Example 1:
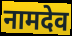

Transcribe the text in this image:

नामदेव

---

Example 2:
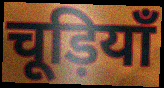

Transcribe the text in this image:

चूड़ियाँ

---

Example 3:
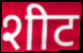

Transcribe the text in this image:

शीट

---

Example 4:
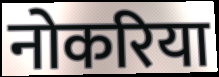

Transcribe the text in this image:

नोकरिया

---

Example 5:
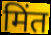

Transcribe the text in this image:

मिंत